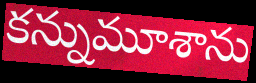
కన్నుమూశాను